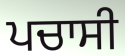
ਪਚਾਸੀ